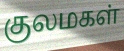
குலமகள்